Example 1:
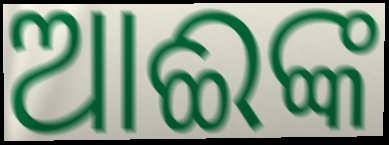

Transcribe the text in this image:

ଆଈଙ୍କ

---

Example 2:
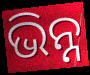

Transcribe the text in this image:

ଭିନ୍ନ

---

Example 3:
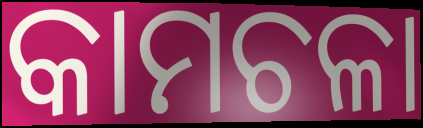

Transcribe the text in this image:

କାମଚଳା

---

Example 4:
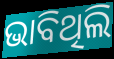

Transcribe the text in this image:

ଭାବିଥିଲି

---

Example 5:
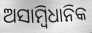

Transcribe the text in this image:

ଅସାମ୍ବିଧାନିକ